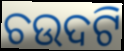
ଚଉଦଟି